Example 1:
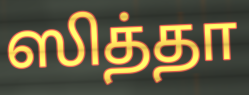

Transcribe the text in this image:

ஸித்தா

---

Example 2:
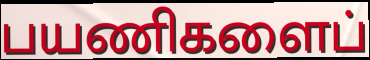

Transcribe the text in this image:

பயணிகளைப்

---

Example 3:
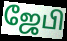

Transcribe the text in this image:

ஜேபி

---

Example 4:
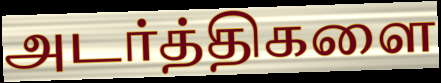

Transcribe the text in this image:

அடர்த்திகளை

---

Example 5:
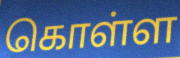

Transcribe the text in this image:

கொள்ள